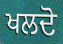
ਖਲਦੋ